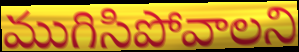
ముగిసిపోవాలని